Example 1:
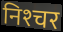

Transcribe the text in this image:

निश्चर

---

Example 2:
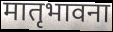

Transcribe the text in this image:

मातृभावना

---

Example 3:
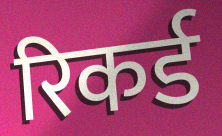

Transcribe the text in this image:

रिकर्ड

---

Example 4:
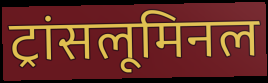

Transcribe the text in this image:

ट्रांसलूमिनल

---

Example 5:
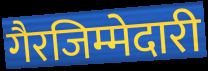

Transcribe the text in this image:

गैरजिम्मेदारी